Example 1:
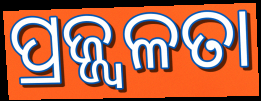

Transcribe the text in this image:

ପ୍ରଜ୍ଜ୍ୱଳତା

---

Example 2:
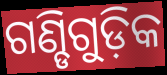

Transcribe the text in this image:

ଗଣ୍ଡିଗୁଡ଼ିକ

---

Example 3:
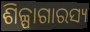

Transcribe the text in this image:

ଶିଳ୍ପାଗାରସ୍ୟ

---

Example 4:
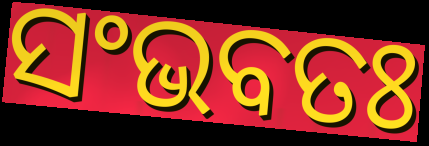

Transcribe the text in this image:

ସଂଭବତଃ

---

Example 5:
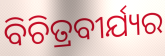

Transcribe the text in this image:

ବିଚିତ୍ରବୀର୍ଯ୍ୟର